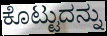
ಕೊಟ್ಟುದನ್ನು